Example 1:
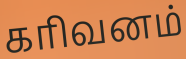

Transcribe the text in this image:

கரிவனம்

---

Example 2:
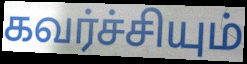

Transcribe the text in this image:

கவர்ச்சியும்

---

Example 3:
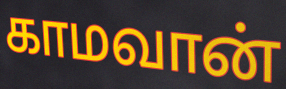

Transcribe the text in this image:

காமவான்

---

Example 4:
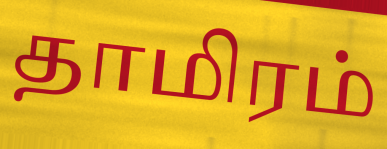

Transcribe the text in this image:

தாமிரம்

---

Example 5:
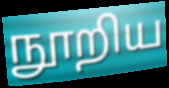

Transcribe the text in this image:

நூறிய